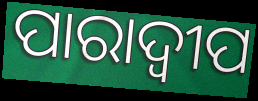
ପାରାଦ୍ୱୀପ